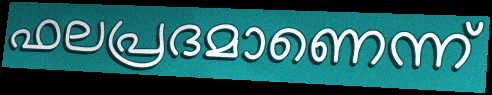
ഫലപ്രദമാണെന്ന്